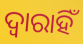
ଦ୍ୱାରାହିଁ